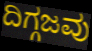
ದಿಗ್ಗಜವು